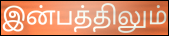
இன்பத்திலும்